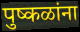
पुष्कळांना